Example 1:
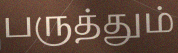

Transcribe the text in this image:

பருத்தும்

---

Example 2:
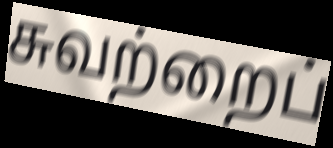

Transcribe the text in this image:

சுவற்றைப்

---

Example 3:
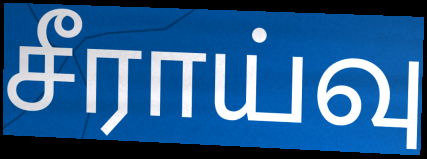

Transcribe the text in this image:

சீராய்வு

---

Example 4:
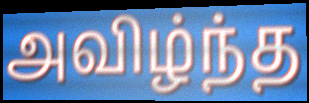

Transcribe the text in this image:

அவிழ்ந்த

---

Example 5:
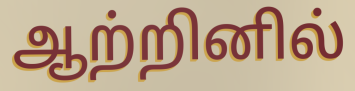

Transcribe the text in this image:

ஆற்றினில்